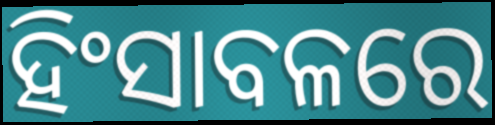
ହିଂସାବଳରେ